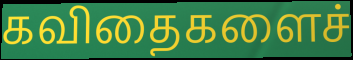
கவிதைகளைச்